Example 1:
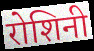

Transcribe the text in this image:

रोशिनी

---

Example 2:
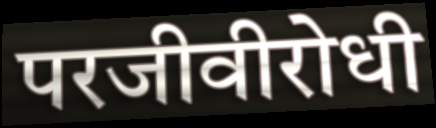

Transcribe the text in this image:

परजीवीरोधी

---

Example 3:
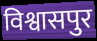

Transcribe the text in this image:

विश्वासपुर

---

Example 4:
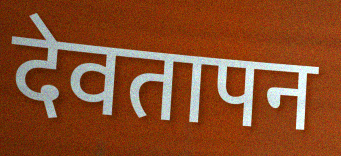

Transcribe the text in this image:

देवतापन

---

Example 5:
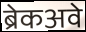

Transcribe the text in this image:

ब्रेकअवे